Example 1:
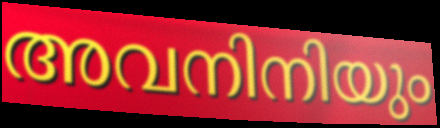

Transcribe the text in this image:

അവനിനിയും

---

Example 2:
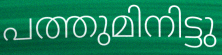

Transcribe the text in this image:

പത്തുമിനിട്ടു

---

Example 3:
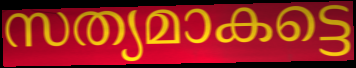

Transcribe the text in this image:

സത്യമാകട്ടെ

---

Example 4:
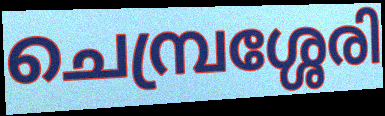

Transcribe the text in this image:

ചെമ്പ്രശ്ശേരി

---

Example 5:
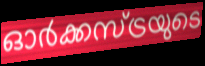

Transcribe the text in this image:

ഓർക്കസ്ട്രയുടെ